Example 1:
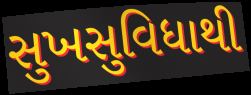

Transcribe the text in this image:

સુખસુવિધાથી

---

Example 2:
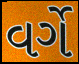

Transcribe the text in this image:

વર્ગે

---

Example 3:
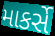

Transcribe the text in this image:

માકર્સે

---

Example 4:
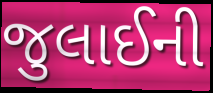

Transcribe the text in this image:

જુલાઈની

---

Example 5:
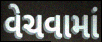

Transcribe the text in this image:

વેચવામાં